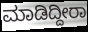
ಮಾಡಿದ್ದೀರಾ